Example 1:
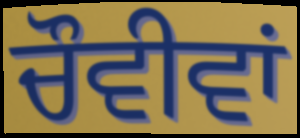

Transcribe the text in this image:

ਚੌਵੀਵਾਂ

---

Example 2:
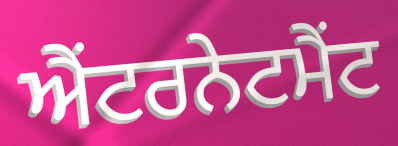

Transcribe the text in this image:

ਐਂਟਰਨੇਟਮੈਂਟ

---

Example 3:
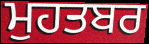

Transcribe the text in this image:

ਮੁਹਤਬਰ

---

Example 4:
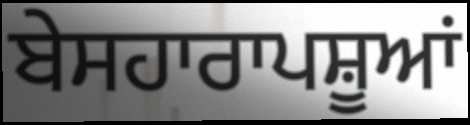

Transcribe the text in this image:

ਬੇਸਹਾਰਾਪਸ਼ੂਆਂ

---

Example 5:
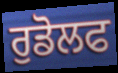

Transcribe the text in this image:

ਰੁਡੋਲਫ